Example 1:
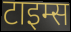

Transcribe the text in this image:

टाइम्स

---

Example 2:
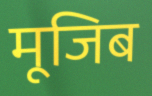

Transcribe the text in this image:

मूजिब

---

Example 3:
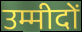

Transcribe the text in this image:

उम्मीदों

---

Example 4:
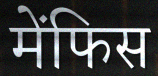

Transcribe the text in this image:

मेंफिस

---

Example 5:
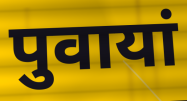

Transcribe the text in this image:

पुवायां